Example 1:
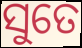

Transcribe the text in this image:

ସୁତେ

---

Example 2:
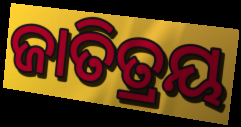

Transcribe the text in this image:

ଜାତିତ୍ରୟ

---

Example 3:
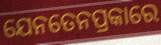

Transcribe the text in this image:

ଯେନତେନପ୍ରକାରେ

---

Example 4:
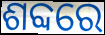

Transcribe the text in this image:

ଶବ୍ଦରେ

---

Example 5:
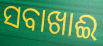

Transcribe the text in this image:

ସବାଖାଈ